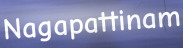
Nagapattinam